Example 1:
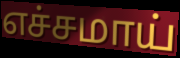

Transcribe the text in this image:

எச்சமாய்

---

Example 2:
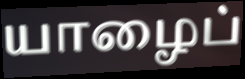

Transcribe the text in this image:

யாழைப்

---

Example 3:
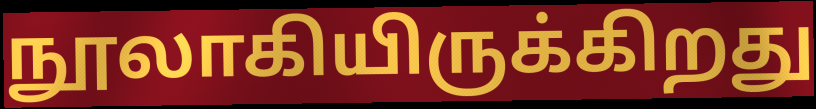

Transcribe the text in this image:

நூலாகியிருக்கிறது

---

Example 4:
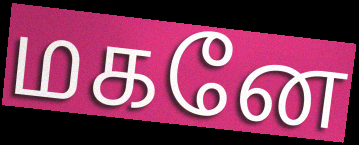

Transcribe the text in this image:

மகனே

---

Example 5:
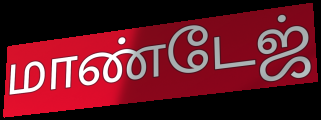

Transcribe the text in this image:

மாண்டேஜ்